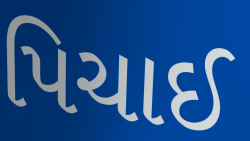
પિચાઈ